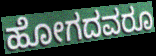
ಹೋಗದವರೂ